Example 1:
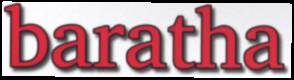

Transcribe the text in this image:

baratha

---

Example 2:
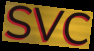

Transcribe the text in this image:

SVC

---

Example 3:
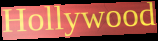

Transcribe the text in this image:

Hollywood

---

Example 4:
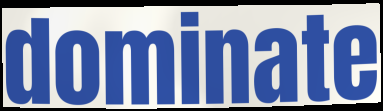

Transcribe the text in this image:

dominate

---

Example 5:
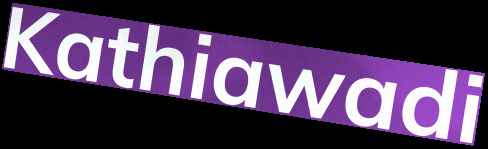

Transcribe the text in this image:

Kathiawadi